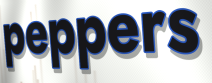
peppers